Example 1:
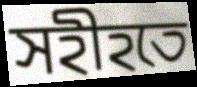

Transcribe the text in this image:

সহীহতে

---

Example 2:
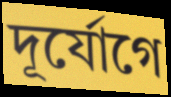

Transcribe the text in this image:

দূর্যোগে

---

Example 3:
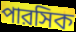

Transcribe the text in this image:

পারসিক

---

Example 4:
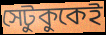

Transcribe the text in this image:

সেটুকুকেই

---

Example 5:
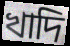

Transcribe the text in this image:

খাদি